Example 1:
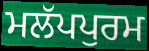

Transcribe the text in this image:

ਮਲੱਪਪੁਰਮ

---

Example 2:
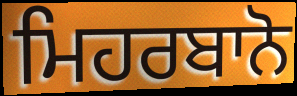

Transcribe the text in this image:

ਮਿਹਰਬਾਨੋ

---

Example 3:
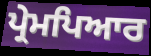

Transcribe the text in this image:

ਪ੍ਰੇਮਪਿਆਰ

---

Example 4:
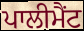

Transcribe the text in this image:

ਪਾਲੀਮੈਂਟ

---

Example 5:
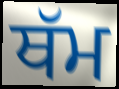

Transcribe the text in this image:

ਥੱਮ